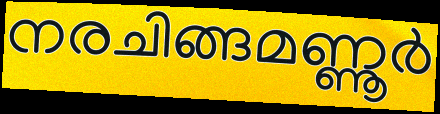
നരചിങ്ങമണ്ണൂർ